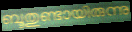
ബൂതുണ്ടായിരുന്നു